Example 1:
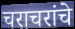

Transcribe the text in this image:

चराचरांचे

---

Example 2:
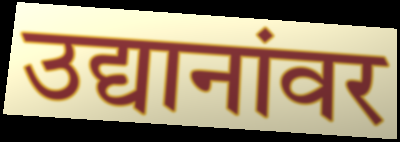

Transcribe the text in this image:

उद्यानांवर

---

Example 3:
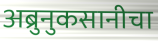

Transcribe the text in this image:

अब्रुनुकसानीचा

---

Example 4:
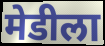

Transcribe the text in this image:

मेडीला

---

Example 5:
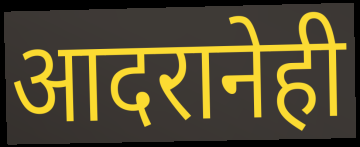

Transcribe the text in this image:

आदरानेही